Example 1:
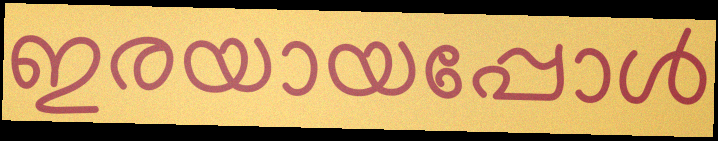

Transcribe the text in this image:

ഇരയായപ്പോൾ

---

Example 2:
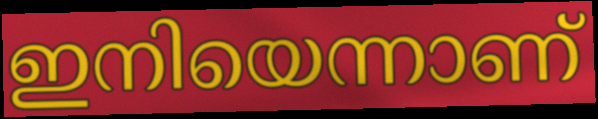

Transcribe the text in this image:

ഇനിയെന്നാണ്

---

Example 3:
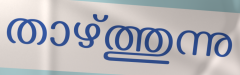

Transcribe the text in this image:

താഴ്ത്തുന്നു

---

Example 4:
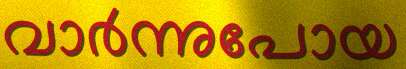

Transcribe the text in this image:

വാർന്നുപോയ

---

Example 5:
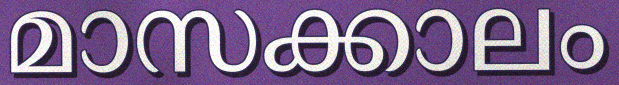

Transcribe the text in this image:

മാസക്കാലം